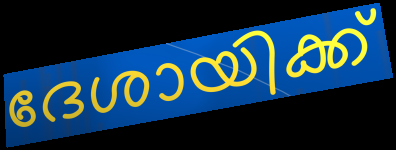
ദേശായിക്ക്